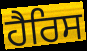
ਹੈਰਿਸ